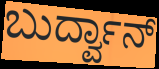
ಬುರ್ದ್ವಾನ್